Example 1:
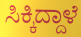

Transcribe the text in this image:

ಸಿಕ್ಕಿದ್ದಾಳೆ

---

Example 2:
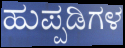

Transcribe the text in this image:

ಹುಪ್ಪಡಿಗಳ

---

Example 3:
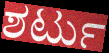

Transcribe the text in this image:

ಶರ್ಟು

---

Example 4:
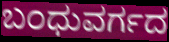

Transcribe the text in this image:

ಬಂಧುವರ್ಗದ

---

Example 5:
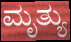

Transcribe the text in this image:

ಮೃತ್ಯು